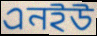
এনইউ